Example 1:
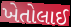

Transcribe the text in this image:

ખેતોલાઈ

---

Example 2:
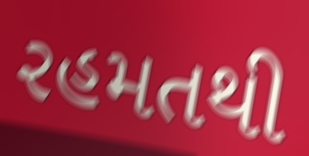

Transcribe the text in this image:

રહમતથી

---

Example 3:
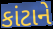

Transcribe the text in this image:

કાંટાને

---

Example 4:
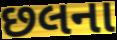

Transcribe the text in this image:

છલના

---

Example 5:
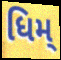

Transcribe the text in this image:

ધિમ્